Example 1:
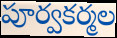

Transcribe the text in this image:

పూర్వకర్మల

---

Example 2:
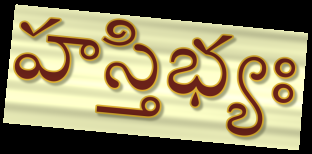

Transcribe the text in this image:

హస్తిభ్యః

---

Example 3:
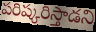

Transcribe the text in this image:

పరిష్కరిస్తాడని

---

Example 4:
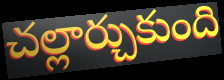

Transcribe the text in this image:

చల్లార్చుకుంది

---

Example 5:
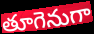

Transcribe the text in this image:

తూగెనుగా